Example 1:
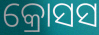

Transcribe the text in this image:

କ୍ରୋସସ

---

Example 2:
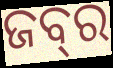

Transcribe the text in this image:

ଜବ୍‍ର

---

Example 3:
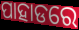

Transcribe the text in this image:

ପାହାଡରେ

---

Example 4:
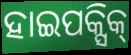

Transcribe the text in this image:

ହାଇପକ୍ସିକ୍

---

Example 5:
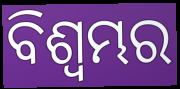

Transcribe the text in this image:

ବିଶ୍ବମ୍ଭର